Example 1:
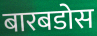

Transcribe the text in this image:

बारबडोस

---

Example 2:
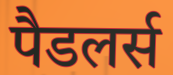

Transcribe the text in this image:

पैडलर्स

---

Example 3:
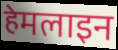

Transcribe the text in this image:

हेमलाइन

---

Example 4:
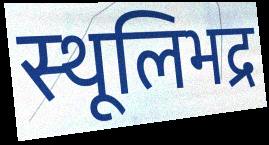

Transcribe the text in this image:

स्थूलिभद्र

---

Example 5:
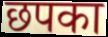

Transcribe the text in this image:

छपका